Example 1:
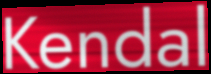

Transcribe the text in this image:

Kendal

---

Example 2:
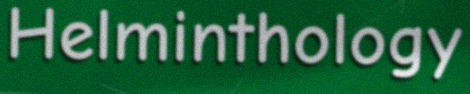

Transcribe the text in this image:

Helminthology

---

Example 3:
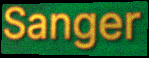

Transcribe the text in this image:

Sanger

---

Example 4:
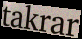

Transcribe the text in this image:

takrar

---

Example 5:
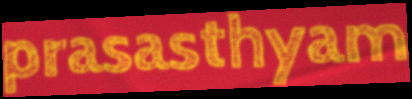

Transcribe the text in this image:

prasasthyam